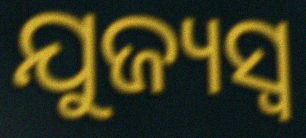
ଯୁଜ୍ୟସ୍ୱ